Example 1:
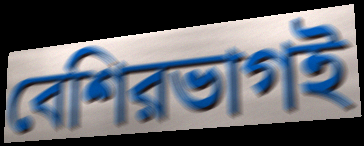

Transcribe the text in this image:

বেশিরভাগই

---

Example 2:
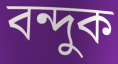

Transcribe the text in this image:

বন্দুক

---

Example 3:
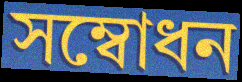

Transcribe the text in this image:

সম্বোধন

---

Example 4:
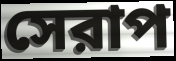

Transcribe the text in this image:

সেরাপ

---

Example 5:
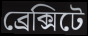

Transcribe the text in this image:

ব্রেক্সিটে